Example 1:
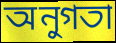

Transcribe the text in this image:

অনুগতা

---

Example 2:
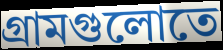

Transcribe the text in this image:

গ্রামগুলোতে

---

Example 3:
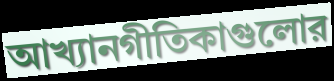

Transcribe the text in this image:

আখ্যানগীতিকাগুলোর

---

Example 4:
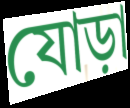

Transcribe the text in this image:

যোড়া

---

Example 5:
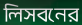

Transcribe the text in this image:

লিসবনের